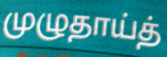
முழுதாய்த்